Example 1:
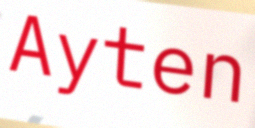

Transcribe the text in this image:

Ayten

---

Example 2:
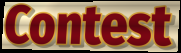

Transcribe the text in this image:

Contest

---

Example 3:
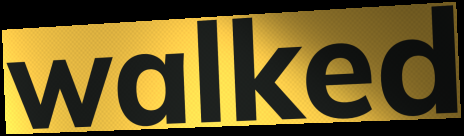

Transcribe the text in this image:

walked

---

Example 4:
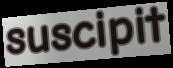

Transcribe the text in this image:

suscipit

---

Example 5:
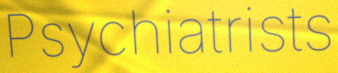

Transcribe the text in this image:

Psychiatrists